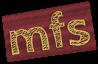
mfs